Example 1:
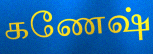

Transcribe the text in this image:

கணேஷ்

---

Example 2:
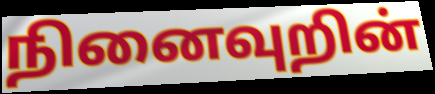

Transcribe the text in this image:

நினைவுறின்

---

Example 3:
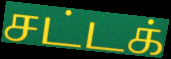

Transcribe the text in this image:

சட்டக்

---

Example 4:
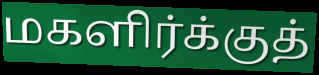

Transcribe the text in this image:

மகளிர்க்குத்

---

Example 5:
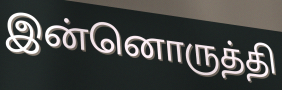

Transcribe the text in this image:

இன்னொருத்தி